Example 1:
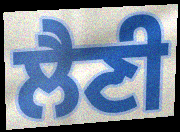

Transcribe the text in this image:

ਲੈਣੀ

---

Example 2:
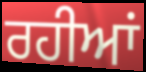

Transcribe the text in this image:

ਰਹੀਆਂ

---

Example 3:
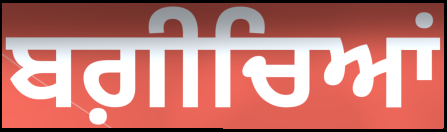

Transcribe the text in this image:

ਬਗ਼ੀਚਿਆਂ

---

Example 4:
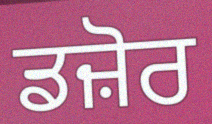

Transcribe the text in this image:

ਡਜ਼ੋਰ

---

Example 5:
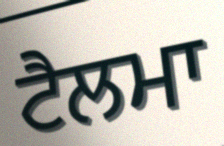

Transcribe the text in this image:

ਟੈਲਮਾ